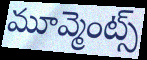
మూవ్మెంట్స్